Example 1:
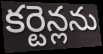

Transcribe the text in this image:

కర్టెన్లను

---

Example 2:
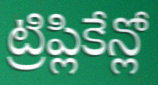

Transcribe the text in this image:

ట్రిప్లికేన్లో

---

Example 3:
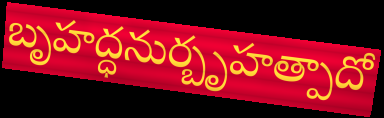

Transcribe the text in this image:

బృహద్ధనుర్బృహత్పాదో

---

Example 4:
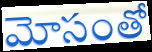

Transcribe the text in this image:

మోసంతో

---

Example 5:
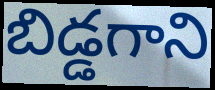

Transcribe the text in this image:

బిడ్డగాని